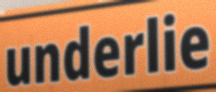
underlie